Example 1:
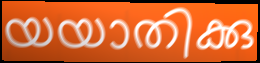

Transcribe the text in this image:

യയാതിക്കു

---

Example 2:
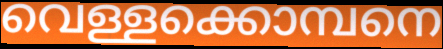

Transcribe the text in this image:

വെള്ളക്കൊമ്പനെ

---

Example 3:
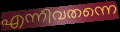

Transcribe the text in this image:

എന്നിവതന്നെ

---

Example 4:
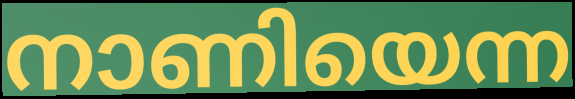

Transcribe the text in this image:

നാണിയെന്ന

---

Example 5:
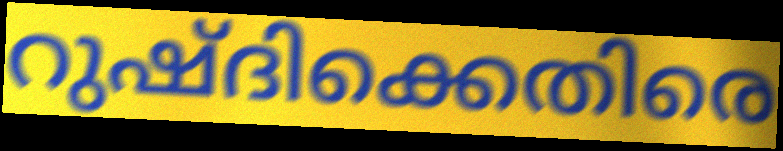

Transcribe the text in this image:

റുഷ്ദിക്കെതിരെ